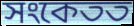
সংকেতত